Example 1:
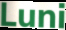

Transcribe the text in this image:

Luni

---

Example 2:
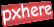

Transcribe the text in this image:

pxhere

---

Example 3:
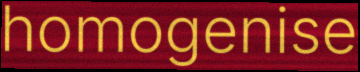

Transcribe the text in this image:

homogenise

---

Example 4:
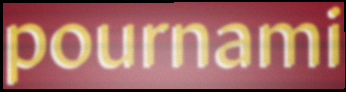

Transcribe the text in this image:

pournami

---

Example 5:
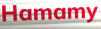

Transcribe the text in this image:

Hamamy